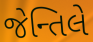
જેન્તિલે